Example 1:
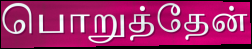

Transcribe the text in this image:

பொறுத்தேன்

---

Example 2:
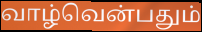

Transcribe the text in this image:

வாழ்வென்பதும்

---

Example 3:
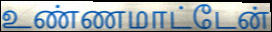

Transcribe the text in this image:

உண்ணமாட்டேன்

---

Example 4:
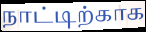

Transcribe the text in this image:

நாட்டிற்காக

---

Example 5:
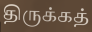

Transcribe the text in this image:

திருக்கத்